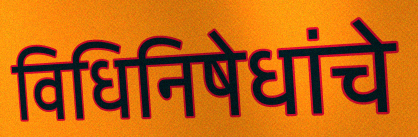
विधिनिषेधांचे